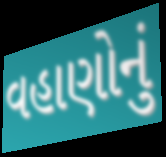
વહાણોનું